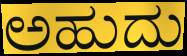
ಅಹುದು